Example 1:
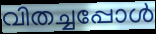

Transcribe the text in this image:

വിതച്ചപ്പോൾ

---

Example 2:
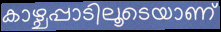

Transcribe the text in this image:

കാഴ്ചപ്പാടിലൂടെയാണ്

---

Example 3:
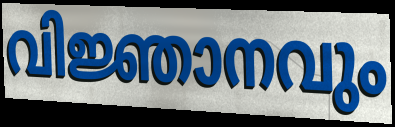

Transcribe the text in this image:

വിജ്ഞാനവും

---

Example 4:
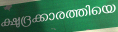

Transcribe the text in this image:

ക്ഷുദ്രക്കാരത്തിയെ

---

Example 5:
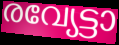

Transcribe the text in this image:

രവ്യേട്ടാ